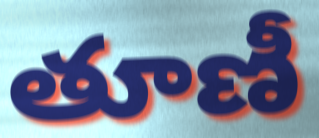
తూణీ